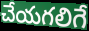
చేయగలిగే